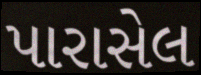
પારાસેલ